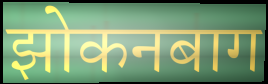
झोकनबाग